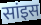
सांइस